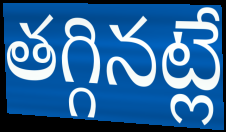
తగ్గినట్లే